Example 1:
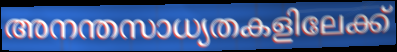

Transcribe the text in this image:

അനന്തസാധ്യതകളിലേക്ക്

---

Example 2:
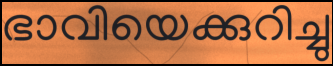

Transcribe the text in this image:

ഭാവിയെക്കുറിച്ചു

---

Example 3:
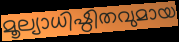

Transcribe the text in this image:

മൂല്യാധിഷ്ഠിതവുമായ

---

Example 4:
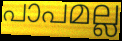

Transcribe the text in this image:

പാപമല്ല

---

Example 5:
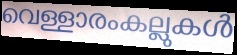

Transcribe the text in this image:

വെള്ളാരംകല്ലുകൾ